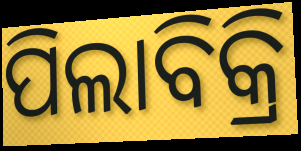
ପିଲାବିକ୍ରି